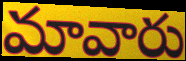
మావారు